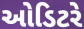
ઓડિટરે